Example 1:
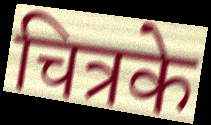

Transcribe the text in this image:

चित्रके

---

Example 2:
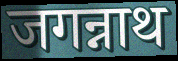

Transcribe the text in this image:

जगन्नाथ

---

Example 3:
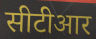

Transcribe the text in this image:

सीटीआर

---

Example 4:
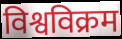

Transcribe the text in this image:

विश्वविक्रम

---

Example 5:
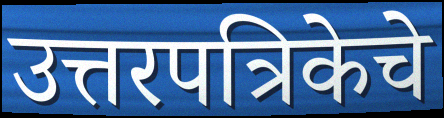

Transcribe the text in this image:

उत्तरपत्रिकेचे